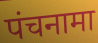
पंचनामा